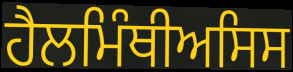
ਹੈਲਮਿੰਥੀਅਸਿਸ